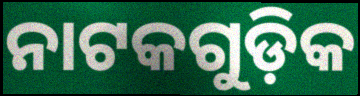
ନାଟକଗୁଡ଼ିକ